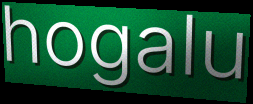
hogalu